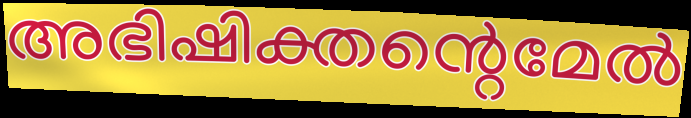
അഭിഷിക്തന്റെമേൽ